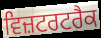
ਵਿਜ਼ਟਰਟਰੈਕ